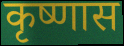
कृष्णास